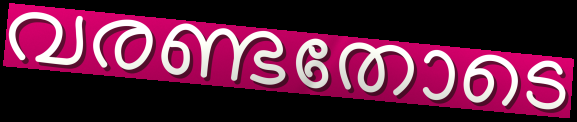
വരണ്ടതോടെ